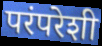
परंपरेशी